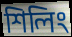
শিলিং